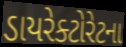
ડાયરેક્ટોરેટના